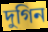
দুগিন